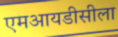
एमआयडीसीला